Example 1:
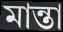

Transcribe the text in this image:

মান্তা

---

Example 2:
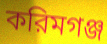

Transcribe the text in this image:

করিমগঞ্জ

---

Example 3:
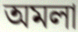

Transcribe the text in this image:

অমলা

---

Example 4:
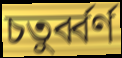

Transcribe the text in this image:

চতুর্ব্বর্ণ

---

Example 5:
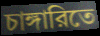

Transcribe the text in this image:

চাঙ্গারিতে